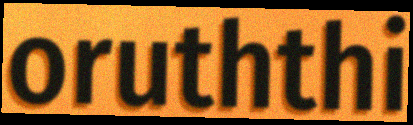
oruththi